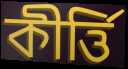
কীৰ্ত্তি